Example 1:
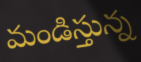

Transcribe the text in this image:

మండిస్తున్న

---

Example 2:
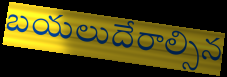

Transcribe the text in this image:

బయలుదేరాల్సిన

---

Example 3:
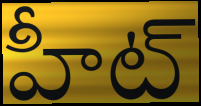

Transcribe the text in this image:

హీట్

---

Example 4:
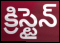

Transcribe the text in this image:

క్రిస్టైన్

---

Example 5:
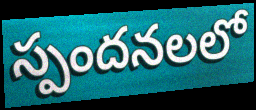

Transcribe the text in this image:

స్పందనలలో